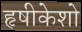
हृषीकेशो